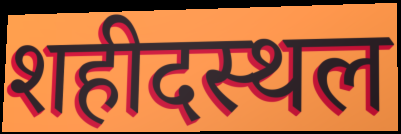
शहीदस्थल